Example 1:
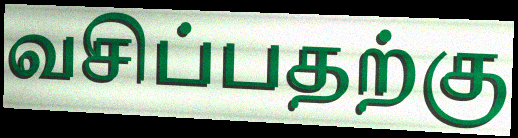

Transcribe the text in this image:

வசிப்பதற்கு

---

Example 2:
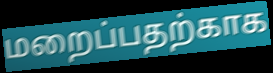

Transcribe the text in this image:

மறைப்பதற்காக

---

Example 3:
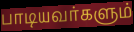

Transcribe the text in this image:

பாடியவர்களும்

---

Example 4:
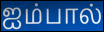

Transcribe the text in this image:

ஐம்பால்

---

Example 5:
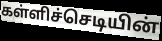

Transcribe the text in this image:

கள்ளிச்செடியின்